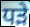
ਧੜੇ